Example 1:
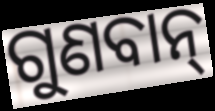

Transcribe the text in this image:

ଗୁଣବାନ୍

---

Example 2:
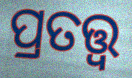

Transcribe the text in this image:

ପ୍ରତତ୍ତ୍ୱ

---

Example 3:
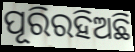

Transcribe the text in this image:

ପୂରିରହିଅଛି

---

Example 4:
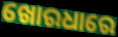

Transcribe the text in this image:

ଖୋରଧାରେ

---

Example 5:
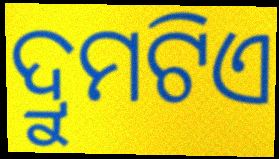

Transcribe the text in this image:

ଦ୍ରୁମଟିଏ